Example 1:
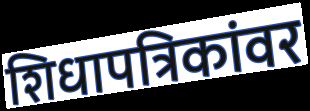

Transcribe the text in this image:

शिधापत्रिकांवर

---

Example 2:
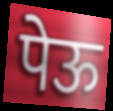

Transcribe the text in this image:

पेऊ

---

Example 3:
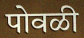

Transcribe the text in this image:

पोवळी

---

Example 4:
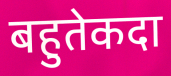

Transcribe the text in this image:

बहुतेकदा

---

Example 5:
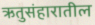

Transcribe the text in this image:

ऋतुसंहारातील